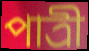
পাত্ৰী